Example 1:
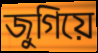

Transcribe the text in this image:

জুগিয়ে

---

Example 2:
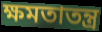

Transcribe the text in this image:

ক্ষমতাতন্ত্র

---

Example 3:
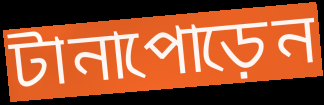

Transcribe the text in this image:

টানাপোড়েন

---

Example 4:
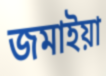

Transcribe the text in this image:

জমাইয়া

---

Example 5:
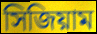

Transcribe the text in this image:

সিজিয়াম